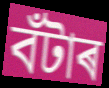
বঁটাৰ